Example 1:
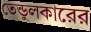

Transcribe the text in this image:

তেন্ডুলকারের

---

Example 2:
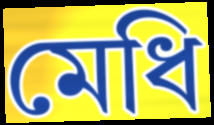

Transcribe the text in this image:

মেধি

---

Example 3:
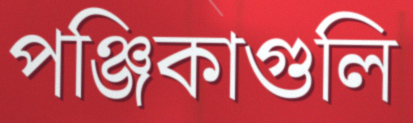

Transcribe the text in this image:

পঞ্জিকাগুলি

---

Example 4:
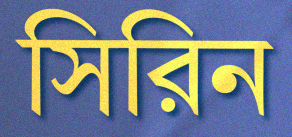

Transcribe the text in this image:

সিরিন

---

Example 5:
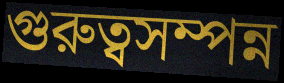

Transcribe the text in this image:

গুরুত্বসম্পন্ন